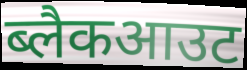
ब्लैकआउट